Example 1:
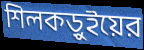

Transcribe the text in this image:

শিলকড়ুইয়ের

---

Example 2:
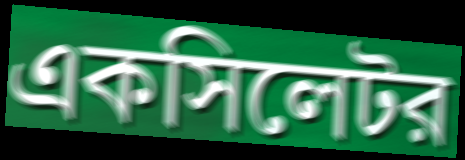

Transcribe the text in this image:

একসিলেটর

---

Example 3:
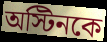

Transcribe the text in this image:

অস্টিনকে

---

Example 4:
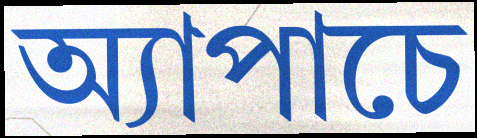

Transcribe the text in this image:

অ্যাপাচে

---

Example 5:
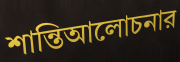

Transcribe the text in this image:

শান্তিআলোচনার